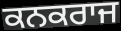
ਕਨਕਰਾਜ